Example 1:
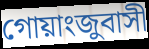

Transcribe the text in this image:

গোয়াংজুবাসী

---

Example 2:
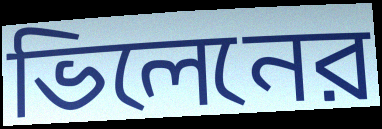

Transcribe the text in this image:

ভিলেনের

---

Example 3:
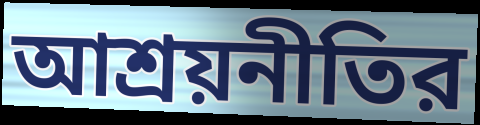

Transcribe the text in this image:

আশ্রয়নীতির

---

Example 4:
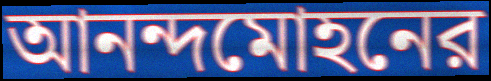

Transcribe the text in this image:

আনন্দমোহনের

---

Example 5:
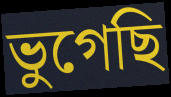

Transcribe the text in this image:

ভুগেছি